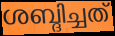
ശബ്ദിച്ചത്